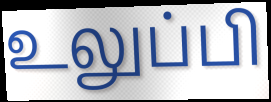
உலுப்பி